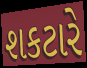
શકટારે